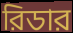
রিডার